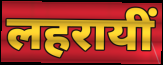
लहरायीं